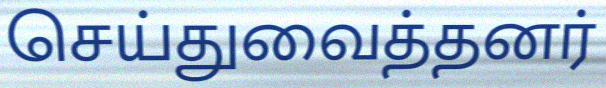
செய்துவைத்தனர்